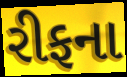
રીફના